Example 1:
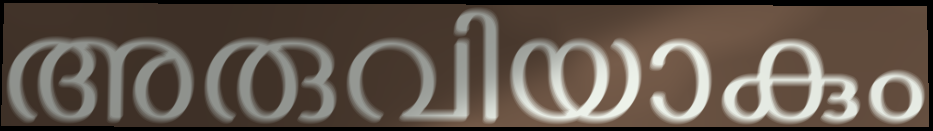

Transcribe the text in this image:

അരുവിയാകും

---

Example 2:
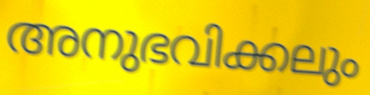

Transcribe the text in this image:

അനുഭവിക്കലും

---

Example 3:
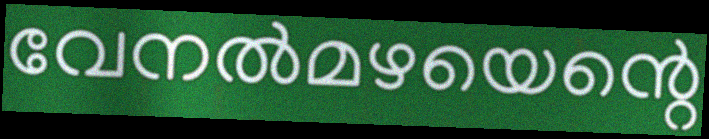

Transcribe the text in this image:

വേനൽമഴയെന്റെ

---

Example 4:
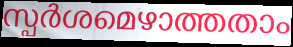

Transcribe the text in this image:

സ്പർശമെഴാത്തതാം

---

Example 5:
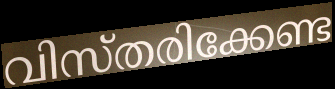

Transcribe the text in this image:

വിസ്തരിക്കേണ്ട